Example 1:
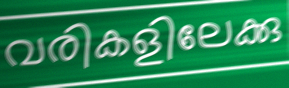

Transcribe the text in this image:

വരികളിലേക്കു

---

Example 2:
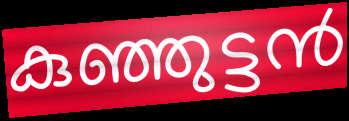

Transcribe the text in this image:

കുഞ്ഞുട്ടൻ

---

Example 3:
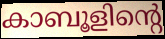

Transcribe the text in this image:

കാബൂളിന്റെ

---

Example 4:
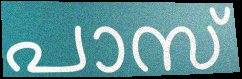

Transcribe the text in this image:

പാസ്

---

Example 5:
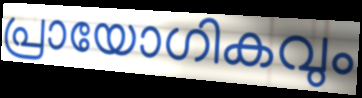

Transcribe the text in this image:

പ്രായോഗികവും